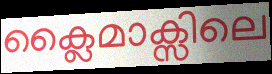
ക്ലൈമാക്സിലെ